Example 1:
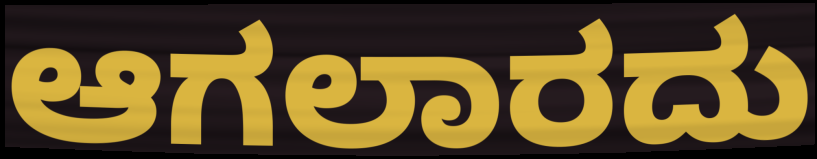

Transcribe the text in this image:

ಆಗಲಾರದು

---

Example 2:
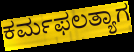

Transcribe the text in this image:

ಕರ್ಮಫಲತ್ಯಾಗ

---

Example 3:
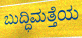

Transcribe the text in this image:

ಬುದ್ಧಿಮತ್ತೆಯ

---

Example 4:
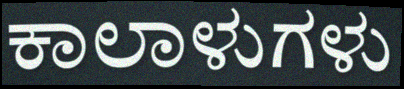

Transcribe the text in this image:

ಕಾಲಾಳುಗಳು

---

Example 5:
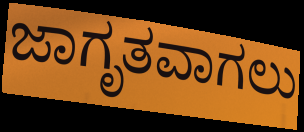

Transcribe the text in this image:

ಜಾಗೃತವಾಗಲು